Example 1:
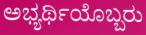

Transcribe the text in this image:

ಅಭ್ಯರ್ಥಿಯೊಬ್ಬರು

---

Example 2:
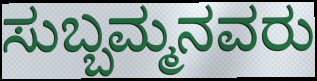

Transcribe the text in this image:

ಸುಬ್ಬಮ್ಮನವರು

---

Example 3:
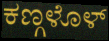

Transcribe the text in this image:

ಕಣ್ಗಳೊಳ್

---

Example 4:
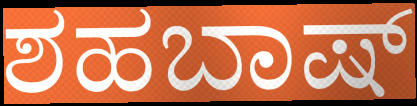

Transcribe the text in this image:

ಶಹಬಾಷ್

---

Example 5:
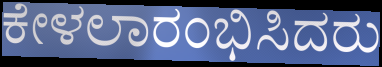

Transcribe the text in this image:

ಕೇಳಲಾರಂಭಿಸಿದರು